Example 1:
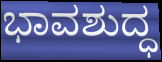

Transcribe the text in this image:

ಭಾವಶುದ್ಧ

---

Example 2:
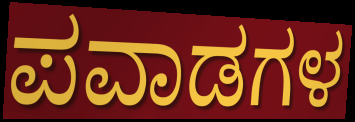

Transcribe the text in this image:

ಪವಾಡಗಳ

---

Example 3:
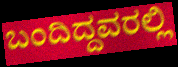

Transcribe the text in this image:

ಬಂದಿದ್ದವರಲ್ಲಿ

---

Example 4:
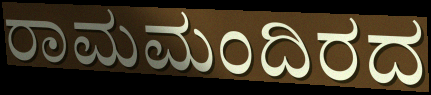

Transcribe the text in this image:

ರಾಮಮಂದಿರದ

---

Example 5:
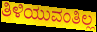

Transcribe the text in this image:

ತಿಳಿಯುವಂತಿಲ್ಲ